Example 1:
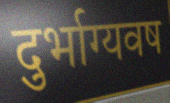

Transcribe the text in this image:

दुर्भाग्यवष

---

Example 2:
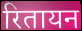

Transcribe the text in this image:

रितायन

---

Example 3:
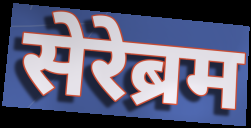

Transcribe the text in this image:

सेरेब्रम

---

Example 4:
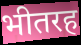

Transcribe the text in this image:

भीतरह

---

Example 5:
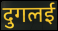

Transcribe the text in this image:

दुगलई